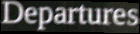
Departures